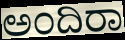
ಅಂದಿರಾ